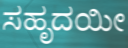
ಸಹೃದಯೀ